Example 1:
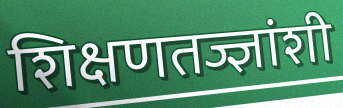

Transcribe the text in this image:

शिक्षणतज्ज्ञांशी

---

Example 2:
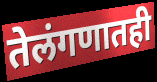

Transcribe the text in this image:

तेलंगणातही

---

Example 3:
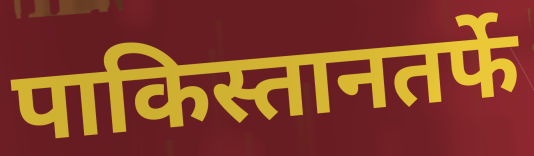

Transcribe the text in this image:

पाकिस्तानतर्फे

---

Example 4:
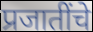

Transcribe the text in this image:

प्रजातींचे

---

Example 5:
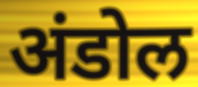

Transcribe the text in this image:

अंडोल